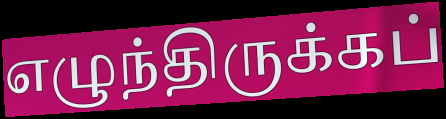
எழுந்திருக்கப்